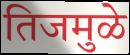
तिजमुळे